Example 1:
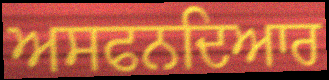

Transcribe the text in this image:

ਅਸਫਨਦਿਆਰ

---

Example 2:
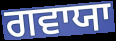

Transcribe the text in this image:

ਗਵਾਯਾ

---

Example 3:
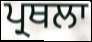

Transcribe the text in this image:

ਪ੍ਰਥਲਾ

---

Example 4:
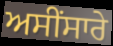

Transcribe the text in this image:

ਅਸੀਂਸਾਰੇ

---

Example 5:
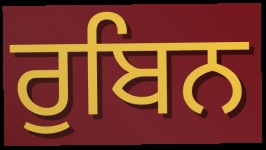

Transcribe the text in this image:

ਰੁਬਿਨ